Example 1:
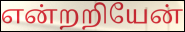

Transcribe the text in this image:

என்றறியேன்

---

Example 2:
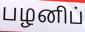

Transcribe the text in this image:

பழனிப்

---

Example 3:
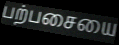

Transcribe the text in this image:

பற்பசையை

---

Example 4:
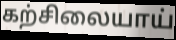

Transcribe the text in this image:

கற்சிலையாய்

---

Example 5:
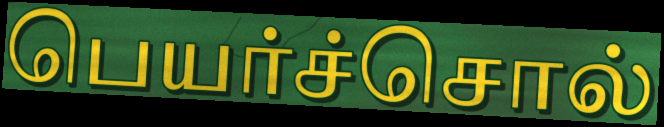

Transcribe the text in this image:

பெயர்ச்சொல்